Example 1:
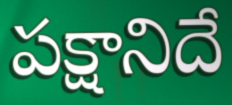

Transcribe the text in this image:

పక్షానిదే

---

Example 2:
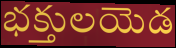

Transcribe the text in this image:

భక్తులయెడ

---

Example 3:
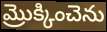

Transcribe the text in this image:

మ్రొక్కించెను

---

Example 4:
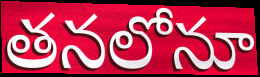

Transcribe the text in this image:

తనలోనూ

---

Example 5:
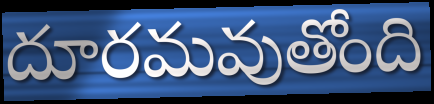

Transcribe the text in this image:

దూరమవుతోంది